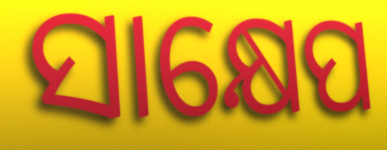
ସାକ୍ଷେପ